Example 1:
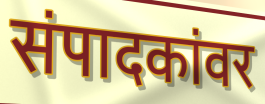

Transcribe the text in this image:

संपादकांवर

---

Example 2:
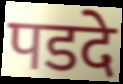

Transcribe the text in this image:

पडदे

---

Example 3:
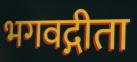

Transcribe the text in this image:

भगवद्गीता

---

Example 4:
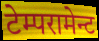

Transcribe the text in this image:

टेम्परामेन्ट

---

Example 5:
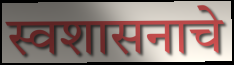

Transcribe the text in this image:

स्वशासनाचे